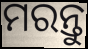
ମରନ୍ତୁ